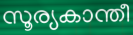
സൂര്യകാന്തീ